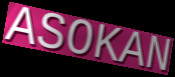
ASOKAN